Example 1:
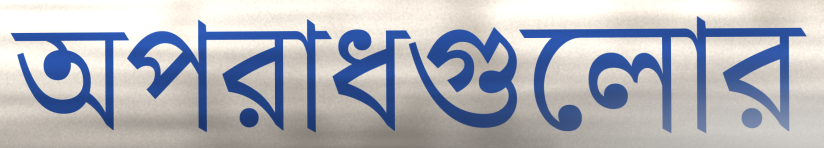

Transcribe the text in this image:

অপরাধগুলোর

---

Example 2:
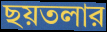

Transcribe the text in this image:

ছয়তলার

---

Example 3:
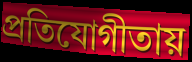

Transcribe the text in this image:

প্রতিযোগীতায়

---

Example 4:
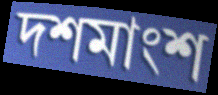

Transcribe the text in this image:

দশমাংশ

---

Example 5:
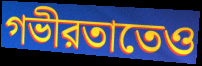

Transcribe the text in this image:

গভীরতাতেও